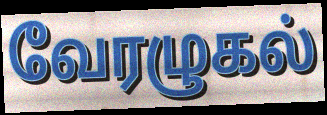
வேரழுகல்